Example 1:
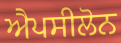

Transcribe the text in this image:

ਐਪਸੀਲੋਨ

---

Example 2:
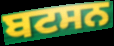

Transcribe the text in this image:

ਬਟਸਨ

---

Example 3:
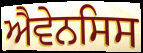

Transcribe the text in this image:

ਐਵੇਨਸਿਸ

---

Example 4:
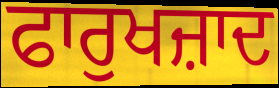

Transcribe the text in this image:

ਫਾਰੁਖਜ਼ਾਦ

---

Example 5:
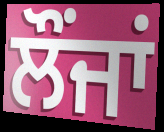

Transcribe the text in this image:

ਲੌਂਜਾਂ